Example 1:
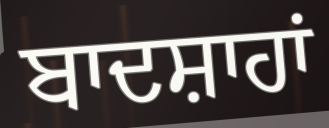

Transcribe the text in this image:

ਬਾਦਸ਼ਾਹਾਂ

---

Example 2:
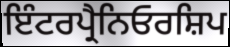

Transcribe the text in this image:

ਇੰਟਰਪ੍ਰੈਨਿਓਰਸ਼ਿਪ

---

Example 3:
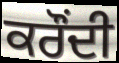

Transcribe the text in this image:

ਕਰੌਂਦੀ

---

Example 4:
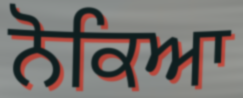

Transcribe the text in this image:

ਨੋਕਿਆ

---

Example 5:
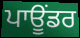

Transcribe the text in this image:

ਪਾਊਂਡਰ